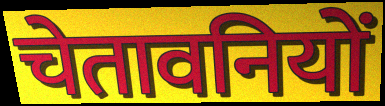
चेतावनियों